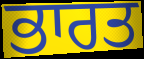
ਭਾਰਤ